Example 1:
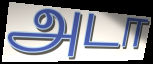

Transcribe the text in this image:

அடா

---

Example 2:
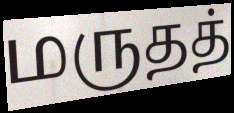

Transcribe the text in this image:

மருதத்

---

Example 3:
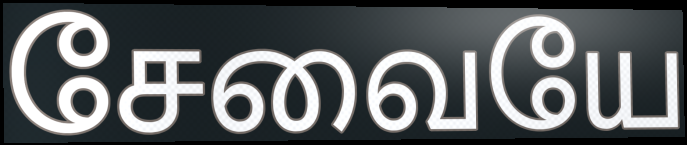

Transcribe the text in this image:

சேவையே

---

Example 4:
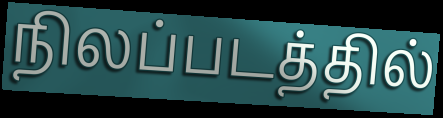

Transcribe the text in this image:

நிலப்படத்தில்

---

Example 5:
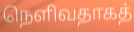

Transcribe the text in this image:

நெளிவதாகத்